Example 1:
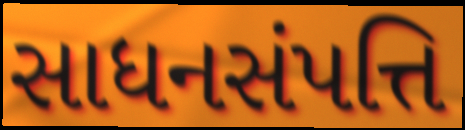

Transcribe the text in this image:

સાધનસંપત્તિ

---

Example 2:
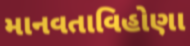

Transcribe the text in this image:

માનવતાવિહોણા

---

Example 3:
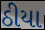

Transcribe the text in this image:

ઠીયા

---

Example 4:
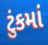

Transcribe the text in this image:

ટુંકમાં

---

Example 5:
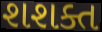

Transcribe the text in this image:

શશક્ત